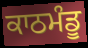
ਕਾਠਮੰਡੂ